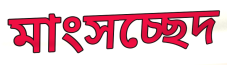
মাংসচ্ছেদ